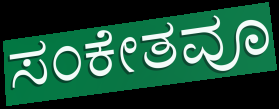
ಸಂಕೇತವೂ